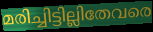
മരിച്ചിട്ടില്ലിതേവരെ